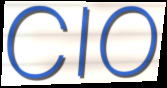
CIO